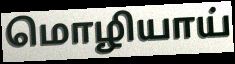
மொழியாய்